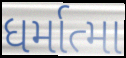
ધર્માત્મા